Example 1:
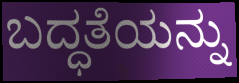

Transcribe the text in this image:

ಬದ್ಧತೆಯನ್ನು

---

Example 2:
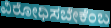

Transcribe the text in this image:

ವಿರೋಧಿಸಬೇಕೆಂಬ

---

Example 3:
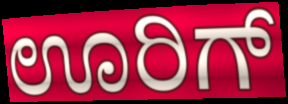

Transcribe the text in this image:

ಊರಿಗ್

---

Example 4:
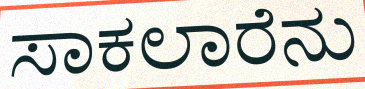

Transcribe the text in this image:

ಸಾಕಲಾರೆನು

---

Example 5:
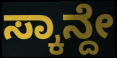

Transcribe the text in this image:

ಸ್ಕಾನ್ದೇ